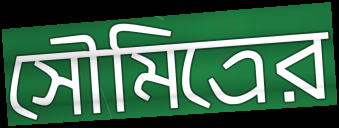
সৌমিত্রের